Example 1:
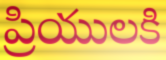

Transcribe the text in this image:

ప్రియులకి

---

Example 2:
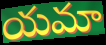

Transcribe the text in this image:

యమా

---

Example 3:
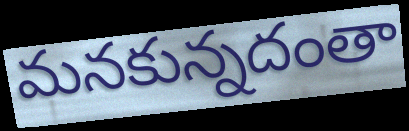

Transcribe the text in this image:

మనకున్నదంతా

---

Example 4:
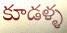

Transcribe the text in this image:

కూడళ్ళ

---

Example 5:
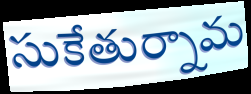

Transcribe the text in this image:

సుకేతుర్నామ